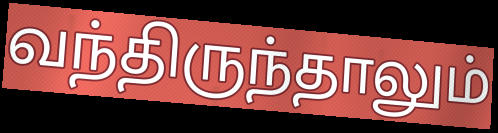
வந்திருந்தாலும்